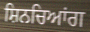
ਸ਼ਿਨਚਿਆਂਗ